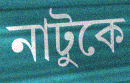
নাটুকে